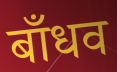
बाँधव